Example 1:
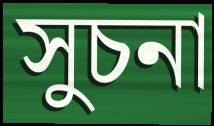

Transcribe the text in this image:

সুচনা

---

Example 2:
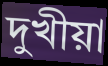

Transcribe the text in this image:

দুখীয়া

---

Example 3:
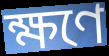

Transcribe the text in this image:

ক্ষণে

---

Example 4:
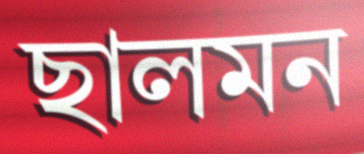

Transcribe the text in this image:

ছালমন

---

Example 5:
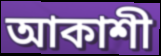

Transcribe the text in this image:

আকাশী